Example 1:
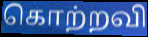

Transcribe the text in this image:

கொற்றவி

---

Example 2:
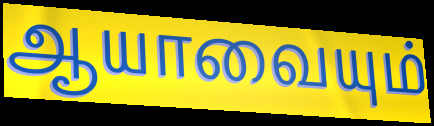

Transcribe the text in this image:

ஆயாவையும்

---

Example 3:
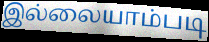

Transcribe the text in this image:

இல்லையாம்படி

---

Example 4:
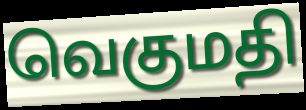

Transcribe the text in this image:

வெகுமதி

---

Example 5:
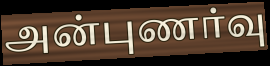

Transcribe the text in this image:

அன்புணர்வு